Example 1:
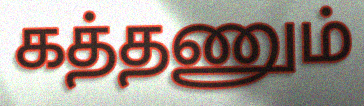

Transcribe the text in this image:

கத்தணும்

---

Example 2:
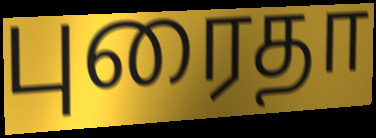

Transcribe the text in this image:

புரைதா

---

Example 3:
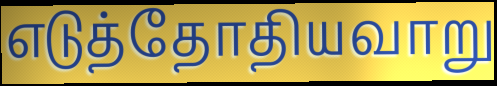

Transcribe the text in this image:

எடுத்தோதியவாறு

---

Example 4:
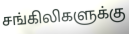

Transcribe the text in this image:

சங்கிலிகளுக்கு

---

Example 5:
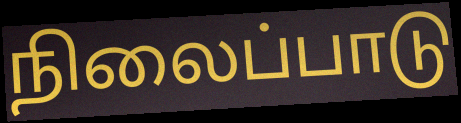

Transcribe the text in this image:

நிலைப்பாடு